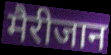
मैरीजान